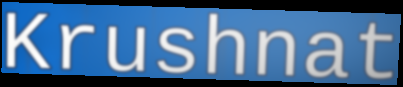
Krushnat